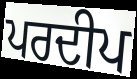
ਪਰਦੀਪ